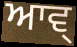
ਆਵ੍